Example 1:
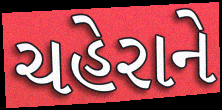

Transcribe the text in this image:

ચહેરાને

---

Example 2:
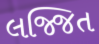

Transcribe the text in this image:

લજ્જિત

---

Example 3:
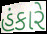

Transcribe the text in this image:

હંકારે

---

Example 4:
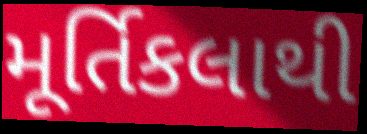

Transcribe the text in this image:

મૂર્તિકલાથી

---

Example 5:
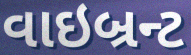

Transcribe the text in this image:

વાઇબ્રન્ટ